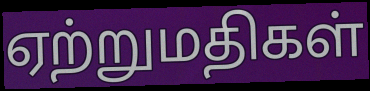
ஏற்றுமதிகள்